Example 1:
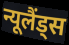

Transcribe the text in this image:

न्यूलैंड्स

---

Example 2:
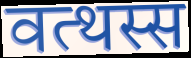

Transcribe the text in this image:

वत्थस्स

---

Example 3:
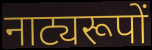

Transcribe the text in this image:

नाट्यरूपों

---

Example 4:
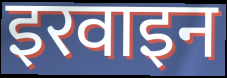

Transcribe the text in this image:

इरवाइन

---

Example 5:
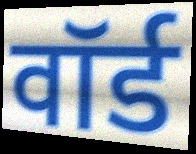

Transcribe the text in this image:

वॉर्ड